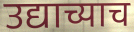
उद्याच्याच